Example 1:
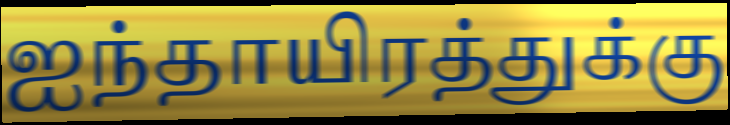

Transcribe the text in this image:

ஐந்தாயிரத்துக்கு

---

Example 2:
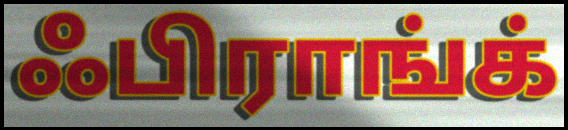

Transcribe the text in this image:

ஃபிராங்க்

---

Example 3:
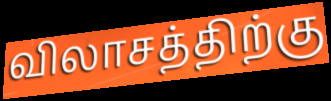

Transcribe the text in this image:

விலாசத்திற்கு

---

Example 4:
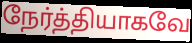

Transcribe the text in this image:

நேர்த்தியாகவே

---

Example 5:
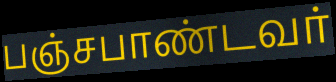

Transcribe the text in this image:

பஞ்சபாண்டவர்